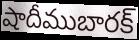
షాదీముబారక్